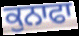
ਕੁਨਾਫਾ